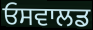
ਓਸਵਾਲਡ